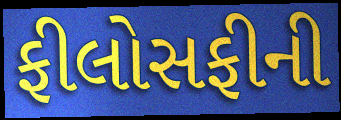
ફીલોસફીની